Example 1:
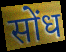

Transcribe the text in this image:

सोंध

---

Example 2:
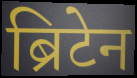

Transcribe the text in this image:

ब्रिटेन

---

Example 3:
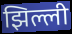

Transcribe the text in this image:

झिल्ली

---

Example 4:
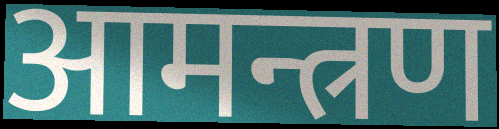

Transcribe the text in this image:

आमन्त्रण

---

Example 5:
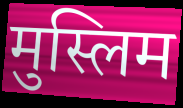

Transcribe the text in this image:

मुस्लिम